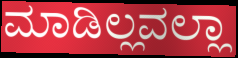
ಮಾಡಿಲ್ಲವಲ್ಲಾ